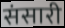
संसारी